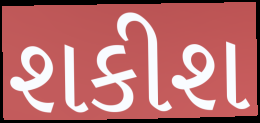
શકીશ